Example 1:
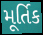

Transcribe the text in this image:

મૂર્તિક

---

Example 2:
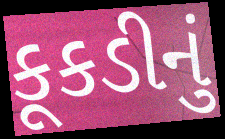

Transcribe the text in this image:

કૂકડીનું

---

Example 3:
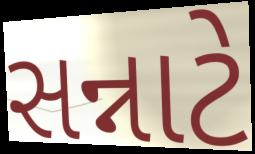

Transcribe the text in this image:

સન્નાટે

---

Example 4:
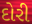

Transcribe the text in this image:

દોરી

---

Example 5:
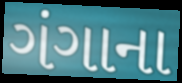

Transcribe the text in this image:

ગંગાના